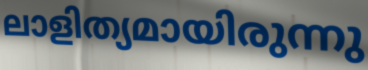
ലാളിത്യമായിരുന്നു